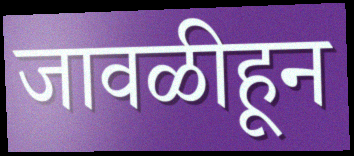
जावळीहून